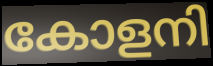
കോളനി